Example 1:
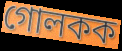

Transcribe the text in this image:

গোলকক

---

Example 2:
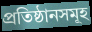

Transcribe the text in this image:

প্ৰতিষ্ঠানসমূহ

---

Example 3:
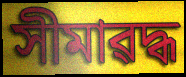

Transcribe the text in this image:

সীমাৱদ্ধ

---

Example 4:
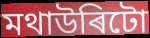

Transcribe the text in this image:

মথাউৰিটো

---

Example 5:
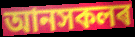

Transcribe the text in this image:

আনসকলৰ